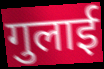
गुलाई